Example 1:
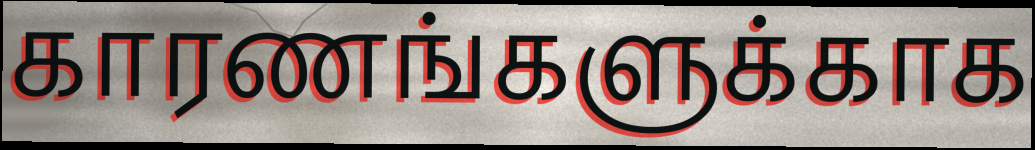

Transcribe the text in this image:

காரணங்களுக்காக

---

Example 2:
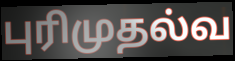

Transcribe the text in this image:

புரிமுதல்வ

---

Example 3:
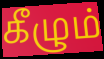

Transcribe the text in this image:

கீழும்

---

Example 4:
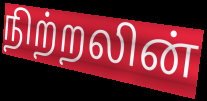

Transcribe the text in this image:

நிற்றலின்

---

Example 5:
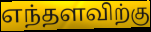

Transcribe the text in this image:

எந்தளவிற்கு